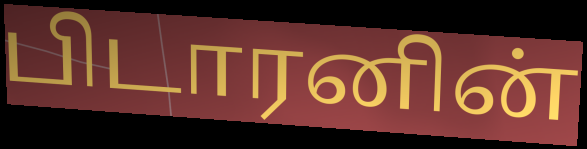
பிடாரனின்